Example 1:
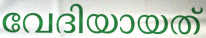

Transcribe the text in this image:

വേദിയായത്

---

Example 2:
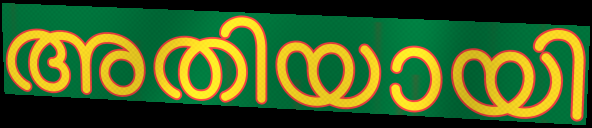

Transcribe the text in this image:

അതിയായി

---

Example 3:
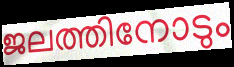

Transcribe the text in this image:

ജലത്തിനോടും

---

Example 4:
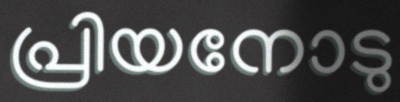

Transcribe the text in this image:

പ്രിയനോടു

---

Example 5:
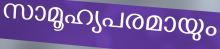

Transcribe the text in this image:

സാമൂഹ്യപരമായും